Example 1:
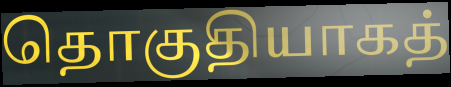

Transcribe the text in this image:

தொகுதியாகத்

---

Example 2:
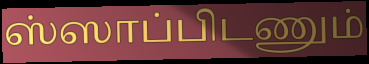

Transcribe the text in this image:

ஸ்ஸாப்பிடணும்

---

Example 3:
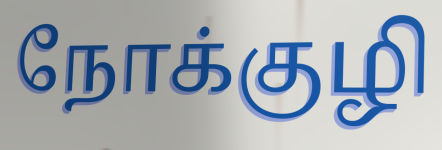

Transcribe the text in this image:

நோக்குழி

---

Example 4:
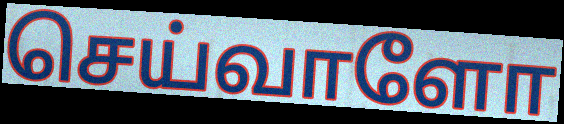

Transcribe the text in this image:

செய்வாளோ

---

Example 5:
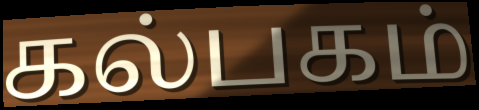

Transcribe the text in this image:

கல்பகம்